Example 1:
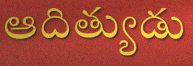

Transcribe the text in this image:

ఆదిత్యుడు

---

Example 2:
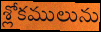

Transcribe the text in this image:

శ్లోకములును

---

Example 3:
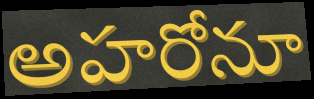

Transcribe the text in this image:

అహరోనూ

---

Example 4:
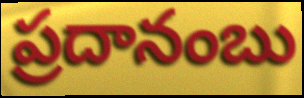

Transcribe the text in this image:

ప్రదానంబు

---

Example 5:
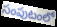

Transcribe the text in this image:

సంపుటంలో